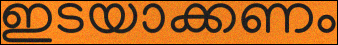
ഇടയാക്കണം